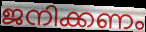
ജനിക്കണം